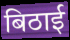
बिठाई